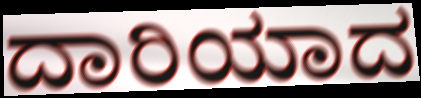
ದಾರಿಯಾದ